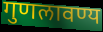
गुणलावण्य